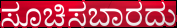
ಸೂಚಿಸಬಾರದು